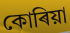
কোৰিয়া